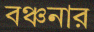
বঞ্চনার